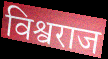
विश्वराज